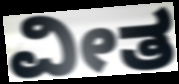
ವೀತ